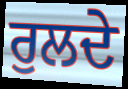
ਰੁਲਦੇ